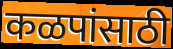
कळपांसाठी